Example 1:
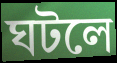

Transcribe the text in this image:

ঘটলে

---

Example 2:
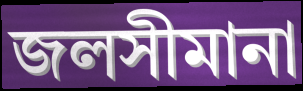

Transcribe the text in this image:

জলসীমানা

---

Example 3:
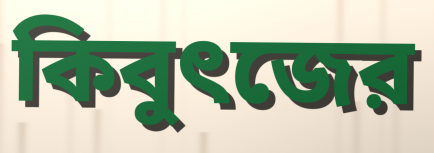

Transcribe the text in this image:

কিবুৎজের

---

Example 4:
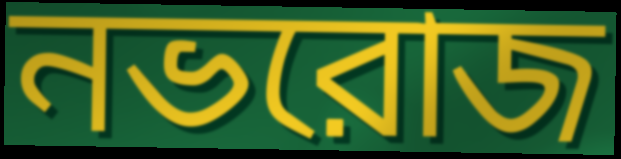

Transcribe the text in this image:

নভরোজ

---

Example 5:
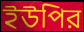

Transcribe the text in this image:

ইউপির